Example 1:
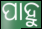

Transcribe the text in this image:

ପାହୁ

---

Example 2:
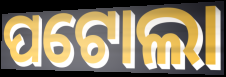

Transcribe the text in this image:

ପଟୋଲା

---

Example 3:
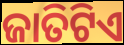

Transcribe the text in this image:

ଜାତିଟିଏ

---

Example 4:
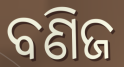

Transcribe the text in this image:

ବଣିଜ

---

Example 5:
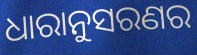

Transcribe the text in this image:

ଧାରାନୁସରଣର